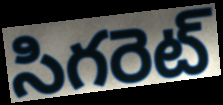
సిగరెట్